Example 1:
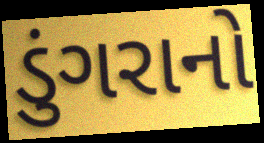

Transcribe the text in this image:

ડુંગરાનો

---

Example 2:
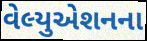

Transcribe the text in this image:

વેલ્યુએશનના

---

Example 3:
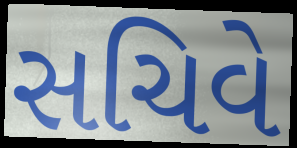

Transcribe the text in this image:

સચિવે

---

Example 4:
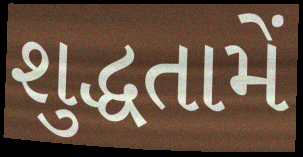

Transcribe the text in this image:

શુદ્ધતામેં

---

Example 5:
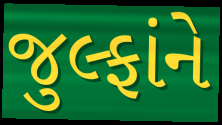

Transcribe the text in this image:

જુલ્ફાંને